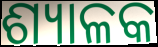
ଶ୍ୟାଳକ